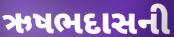
ઋષભદાસની